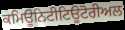
ਕਮਿਊਨਿਟੀਟਿਊਟੋਰੀਅਲ